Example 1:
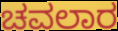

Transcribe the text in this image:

ಚವಲಾರ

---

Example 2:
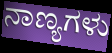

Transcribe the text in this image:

ನಾಣ್ಯಗಳು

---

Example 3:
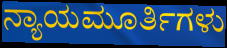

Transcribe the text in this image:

ನ್ಯಾಯಮೂರ್ತಿಗಳು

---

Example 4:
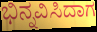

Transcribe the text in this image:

ಭಿನ್ನವಿಸಿದಾಗ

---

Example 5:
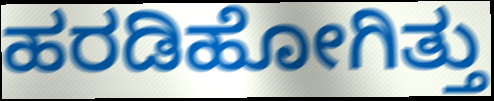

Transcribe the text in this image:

ಹರಡಿಹೋಗಿತ್ತು